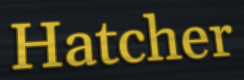
Hatcher